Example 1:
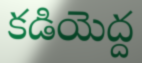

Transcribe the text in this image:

కడియెద్ద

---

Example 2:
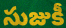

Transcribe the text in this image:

సుజుకీ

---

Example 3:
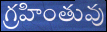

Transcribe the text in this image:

గ్రహింతువు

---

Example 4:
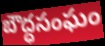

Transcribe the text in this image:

బౌద్ధసంఘం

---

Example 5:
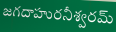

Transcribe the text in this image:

జగదాహురనీశ్వరమ్